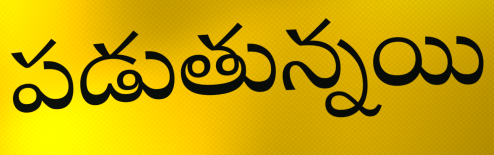
పడుతున్నయి